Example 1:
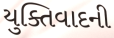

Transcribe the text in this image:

યુક્તિવાદની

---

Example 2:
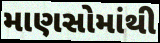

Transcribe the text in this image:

માણસોમાંથી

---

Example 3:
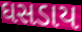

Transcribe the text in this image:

ઘસડાય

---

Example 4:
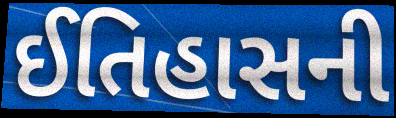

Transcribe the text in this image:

ઈતિહાસની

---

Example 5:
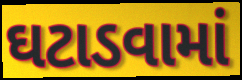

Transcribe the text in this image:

ઘટાડવામાં